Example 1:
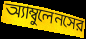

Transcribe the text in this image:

অ্যাম্বুলেনসের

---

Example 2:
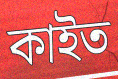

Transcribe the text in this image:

কাইত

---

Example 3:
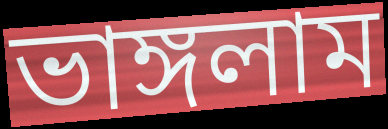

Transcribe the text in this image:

ভাঙ্গলাম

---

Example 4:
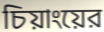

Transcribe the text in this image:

চিয়াংয়ের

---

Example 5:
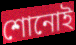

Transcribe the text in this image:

শোনোই